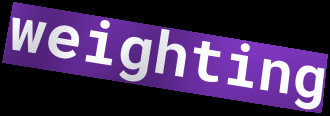
weighting